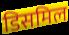
डिसमिल